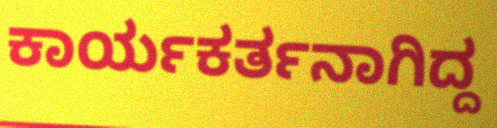
ಕಾರ್ಯಕರ್ತನಾಗಿದ್ದ